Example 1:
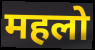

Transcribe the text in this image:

महलो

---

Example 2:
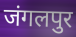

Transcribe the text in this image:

जंगलपुर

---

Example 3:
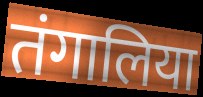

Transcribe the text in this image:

तंगालिया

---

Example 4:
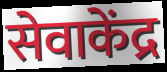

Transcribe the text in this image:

सेवाकेंद्र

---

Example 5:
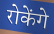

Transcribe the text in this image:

रोकेंगे